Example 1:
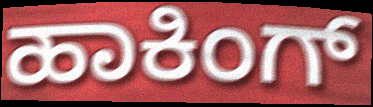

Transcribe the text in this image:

ಹಾಕಿಂಗ್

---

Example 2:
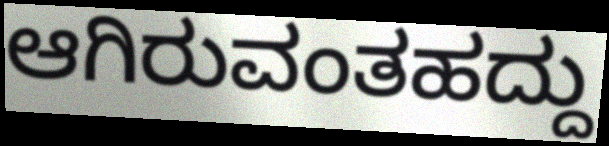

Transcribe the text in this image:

ಆಗಿರುವಂತಹದ್ದು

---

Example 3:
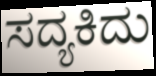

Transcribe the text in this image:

ಸದ್ಯಕಿದು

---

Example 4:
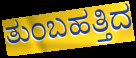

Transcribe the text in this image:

ತುಂಬಹತ್ತಿದ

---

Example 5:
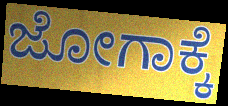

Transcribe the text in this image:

ಜೋಗಾಕ್ಕೆ